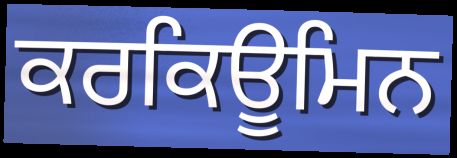
ਕਰਕਿਊਮਿਨ